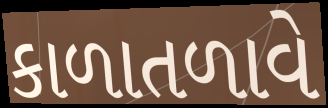
કાળાતળાવે